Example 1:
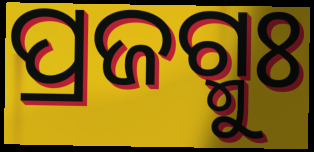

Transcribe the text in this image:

ପ୍ରଜଗ୍ମୁଃ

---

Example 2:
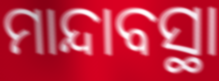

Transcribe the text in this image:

ମାନ୍ଦାବସ୍ଥା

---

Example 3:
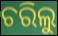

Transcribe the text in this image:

ଚରିଲୁ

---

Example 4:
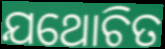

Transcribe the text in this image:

ଯଥୋଚିତ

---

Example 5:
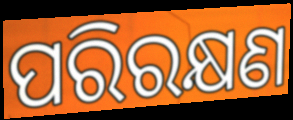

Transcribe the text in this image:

ପରିରକ୍ଷଣ